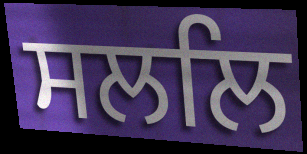
ਸਲਲਿ